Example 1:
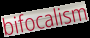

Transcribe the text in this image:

bifocalism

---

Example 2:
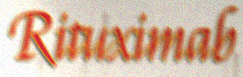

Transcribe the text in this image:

Rituximab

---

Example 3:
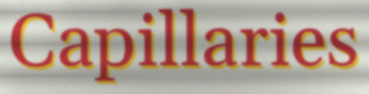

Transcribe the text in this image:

Capillaries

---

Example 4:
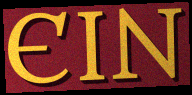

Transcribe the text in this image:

EIN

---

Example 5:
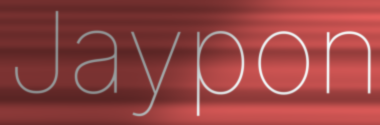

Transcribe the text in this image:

Jaypon